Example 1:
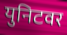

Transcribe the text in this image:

युनिटवर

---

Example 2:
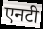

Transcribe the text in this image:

एनटी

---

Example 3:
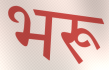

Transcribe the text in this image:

भरू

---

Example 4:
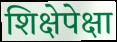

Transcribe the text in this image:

शिक्षेपेक्षा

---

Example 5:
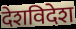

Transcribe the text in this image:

देशविदेश